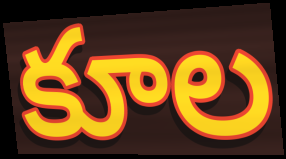
కూల